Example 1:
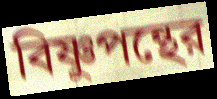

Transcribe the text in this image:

বিষ্ণুপন্থের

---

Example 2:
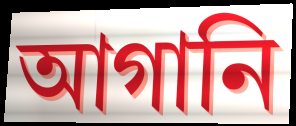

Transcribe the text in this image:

আগানি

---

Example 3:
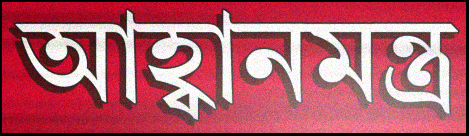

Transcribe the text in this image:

আহ্বানমন্ত্র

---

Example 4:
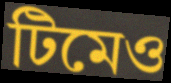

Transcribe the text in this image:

টিমেও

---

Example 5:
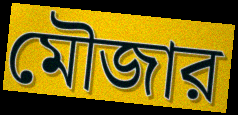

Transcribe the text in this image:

মৌজার